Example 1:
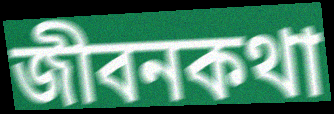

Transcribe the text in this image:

জীবনকথা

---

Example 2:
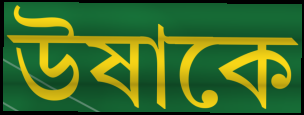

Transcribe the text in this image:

উষাকে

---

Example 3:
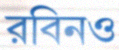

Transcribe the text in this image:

রবিনও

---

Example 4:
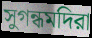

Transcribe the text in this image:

সুগন্ধমদিরা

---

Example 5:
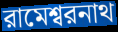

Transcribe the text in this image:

রামেশ্বরনাথ